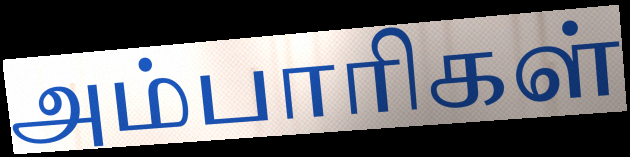
அம்பாரிகள்